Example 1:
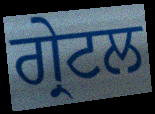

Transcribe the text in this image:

ਗ੍ਰੇਟਲ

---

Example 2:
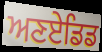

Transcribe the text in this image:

ਅਣਏਡਿਡ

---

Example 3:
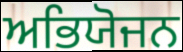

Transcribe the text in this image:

ਅਭਿਯੋਜਨ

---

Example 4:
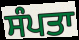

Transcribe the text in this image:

ਸੰਪਤਾ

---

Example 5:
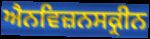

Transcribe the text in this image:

ਐਨਵਿਜ਼ਨਸਕ੍ਰੀਨ